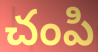
చంపి